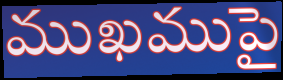
ముఖముపై